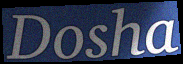
Dosha